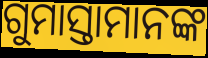
ଗୁମାସ୍ତାମାନଙ୍କ